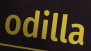
odilla